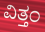
ವಿತ್ತಂ